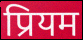
प्रियम